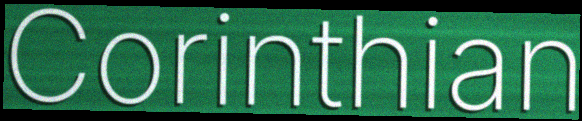
Corinthian